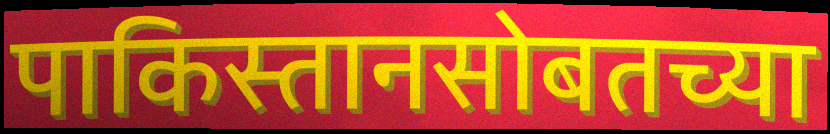
पाकिस्तानसोबतच्या